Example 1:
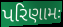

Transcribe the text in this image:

પરિણામઃ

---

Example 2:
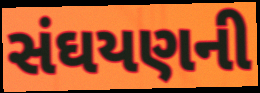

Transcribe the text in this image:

સંઘયણની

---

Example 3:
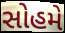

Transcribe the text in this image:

સોહમે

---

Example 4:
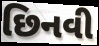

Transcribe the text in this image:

છિનવી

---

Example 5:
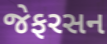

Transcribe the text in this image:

જેફરસન